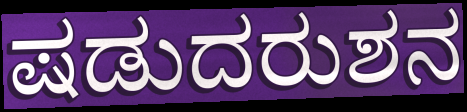
ಷಡುದರುಶನ